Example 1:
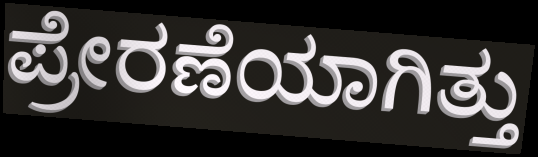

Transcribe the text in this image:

ಪ್ರೇರಣೆಯಾಗಿತ್ತು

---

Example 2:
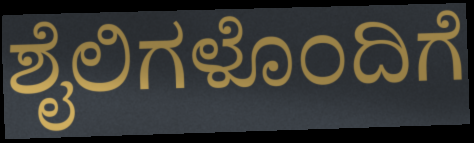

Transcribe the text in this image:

ಶೈಲಿಗಳೊಂದಿಗೆ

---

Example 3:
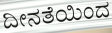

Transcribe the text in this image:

ದೀನತೆಯಿಂದ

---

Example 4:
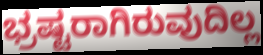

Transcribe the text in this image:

ಭ್ರಷ್ಟರಾಗಿರುವುದಿಲ್ಲ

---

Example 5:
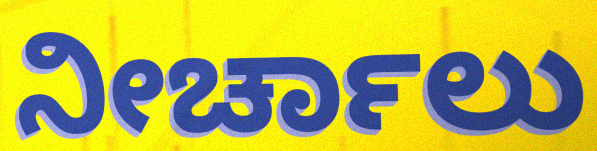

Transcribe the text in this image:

ನೀರ್ಚಾಲು